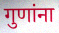
गुणांना